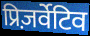
प्रिज़र्वेटिव